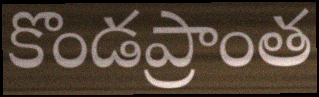
కొండప్రాంత